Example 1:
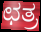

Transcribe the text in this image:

ಛತ್ರ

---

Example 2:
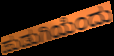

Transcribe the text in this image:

ಹುಡುಗಿಯೆಂದು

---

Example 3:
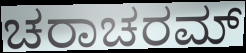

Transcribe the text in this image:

ಚರಾಚರಮ್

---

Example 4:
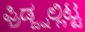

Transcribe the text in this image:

ಫ್ರಿಡ್ಜ್ನಲ್ಲಿಟ್ಟ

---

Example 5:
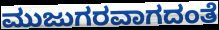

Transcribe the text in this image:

ಮುಜುಗರವಾಗದಂತೆ